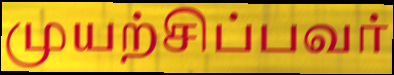
முயற்சிப்பவர்